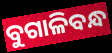
ବୁଗାଳିବନ୍ଧ